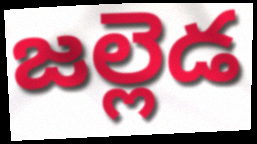
జల్లెడ